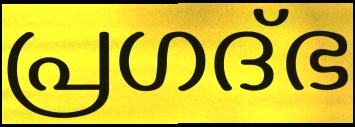
പ്രഗദ്ഭ